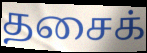
தசைக்